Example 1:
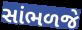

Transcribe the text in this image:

સાંભળજે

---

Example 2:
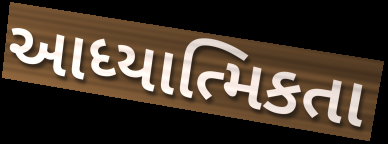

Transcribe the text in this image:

આધ્યાત્મિકતા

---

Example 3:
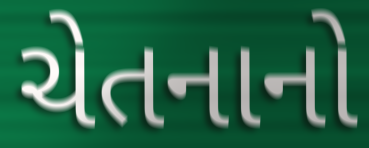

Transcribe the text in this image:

ચેતનાનો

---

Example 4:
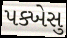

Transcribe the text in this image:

પક્ખેસુ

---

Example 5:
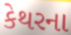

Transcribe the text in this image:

કેથરના